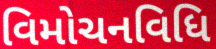
વિમોચનવિધિ